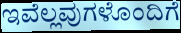
ಇವೆಲ್ಲವುಗಳೊಂದಿಗೆ